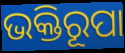
ଭକ୍ତିରୂପା